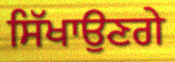
ਸਿੱਖਾਉਣਗੇ